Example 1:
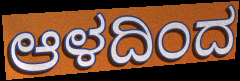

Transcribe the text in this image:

ಆಳದಿಂದ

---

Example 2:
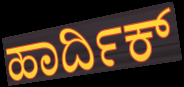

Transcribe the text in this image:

ಹಾರ್ದಿಕ್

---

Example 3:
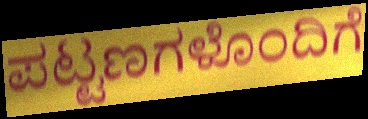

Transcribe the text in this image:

ಪಟ್ಟಣಗಳೊಂದಿಗೆ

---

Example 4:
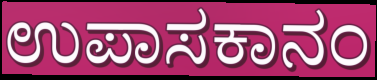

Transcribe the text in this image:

ಉಪಾಸಕಾನಂ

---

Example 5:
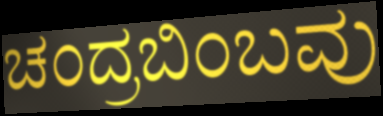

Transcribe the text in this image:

ಚಂದ್ರಬಿಂಬವು